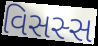
વિસસ્સ